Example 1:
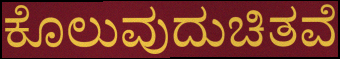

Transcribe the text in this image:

ಕೊಲುವುದುಚಿತವೆ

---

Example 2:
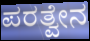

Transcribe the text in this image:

ಪರತ್ವೇನ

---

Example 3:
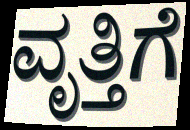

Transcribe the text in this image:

ವೃತ್ತಿಗೆ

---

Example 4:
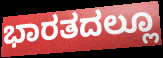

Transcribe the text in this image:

ಭಾರತದಲ್ಲೂ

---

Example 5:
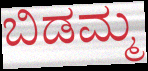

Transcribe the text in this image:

ಬಿಡಮ್ಮ